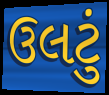
ઉલટું